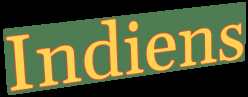
Indiens